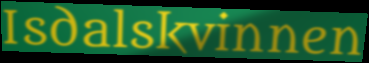
Isdalskvinnen